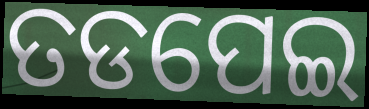
ତଡପେଇ